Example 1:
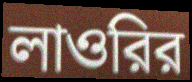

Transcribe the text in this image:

লাওরির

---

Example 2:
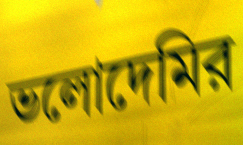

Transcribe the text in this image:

ভলোদেমির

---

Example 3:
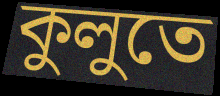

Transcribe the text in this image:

কুলুতে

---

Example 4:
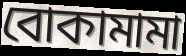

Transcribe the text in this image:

বোকামামা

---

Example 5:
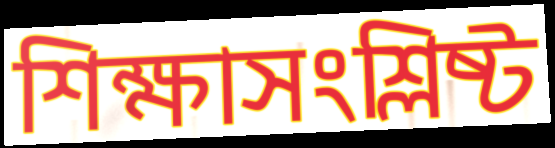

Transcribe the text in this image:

শিক্ষাসংশ্লিষ্ট